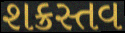
શક્રસ્તવ